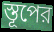
স্তূপের